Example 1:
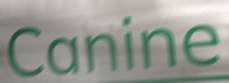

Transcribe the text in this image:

Canine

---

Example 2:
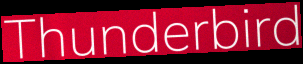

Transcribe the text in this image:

Thunderbird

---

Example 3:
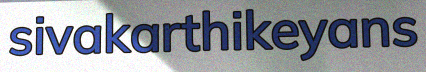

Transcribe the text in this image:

sivakarthikeyans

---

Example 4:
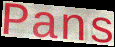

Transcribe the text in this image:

Pans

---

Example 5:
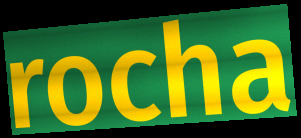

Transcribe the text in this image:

rocha